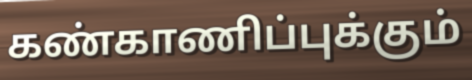
கண்காணிப்புக்கும்